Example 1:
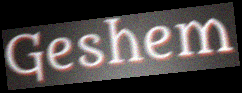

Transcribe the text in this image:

Geshem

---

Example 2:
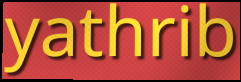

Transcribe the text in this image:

yathrib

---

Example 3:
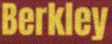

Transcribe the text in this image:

Berkley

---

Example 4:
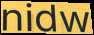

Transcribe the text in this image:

nidw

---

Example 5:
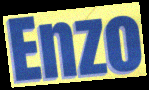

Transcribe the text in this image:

Enzo